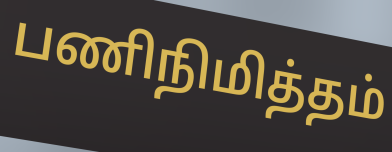
பணிநிமித்தம்